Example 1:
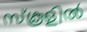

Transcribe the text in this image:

സ്കൂളിൽ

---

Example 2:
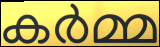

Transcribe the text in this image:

കർമ്മ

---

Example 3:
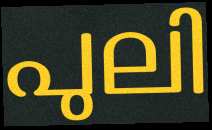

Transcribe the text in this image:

പുലി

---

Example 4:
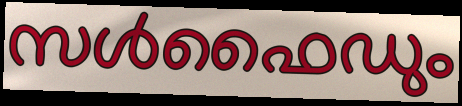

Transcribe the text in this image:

സൾഫൈഡും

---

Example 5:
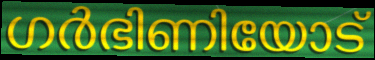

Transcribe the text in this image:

ഗർഭിണിയോട്